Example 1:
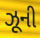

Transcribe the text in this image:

ઝૂની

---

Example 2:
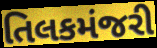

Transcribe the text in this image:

તિલકમંજરી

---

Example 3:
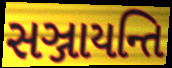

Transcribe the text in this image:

સઞ્જાયન્તિ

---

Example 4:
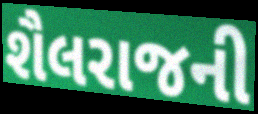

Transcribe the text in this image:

શૈલરાજની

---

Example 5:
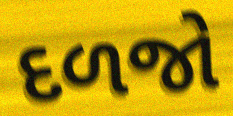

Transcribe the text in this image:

દળજો